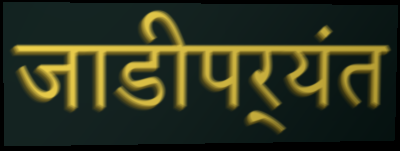
जाडीपर्यंत